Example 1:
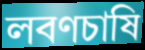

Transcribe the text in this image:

লবণচাষি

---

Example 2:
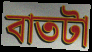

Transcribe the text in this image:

বাতটা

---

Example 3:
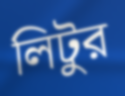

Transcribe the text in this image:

লিটুর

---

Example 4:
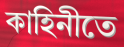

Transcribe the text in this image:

কাহিনীতে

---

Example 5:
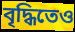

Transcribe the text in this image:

বৃদ্ধিতেও